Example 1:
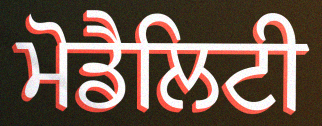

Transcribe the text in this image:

ਮੋਡੈਲਿਟੀ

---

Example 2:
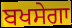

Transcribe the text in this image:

ਬਖਸੇਗਾ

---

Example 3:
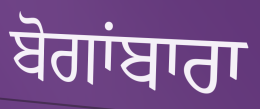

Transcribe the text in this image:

ਬੋਗਾਂਬਾਰਾ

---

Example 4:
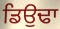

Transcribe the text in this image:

ਡਿਉਢਾ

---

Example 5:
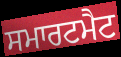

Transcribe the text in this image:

ਸਮਾਰਟਮੈਟ